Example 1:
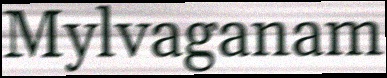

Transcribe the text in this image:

Mylvaganam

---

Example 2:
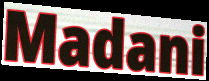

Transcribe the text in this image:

Madani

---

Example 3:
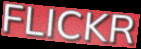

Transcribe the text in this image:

FLICKR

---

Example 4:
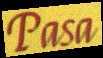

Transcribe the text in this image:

Pasa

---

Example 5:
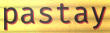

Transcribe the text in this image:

pastay